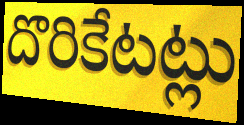
దొరికేటట్లు